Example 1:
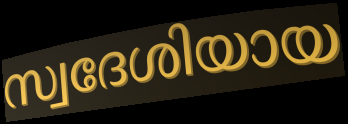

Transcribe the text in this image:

സ്വദേശിയായ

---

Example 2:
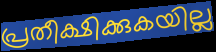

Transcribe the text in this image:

പ്രതീക്ഷിക്കുകയില്ല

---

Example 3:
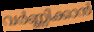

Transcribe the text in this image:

വർണ്ണിക്കാൻ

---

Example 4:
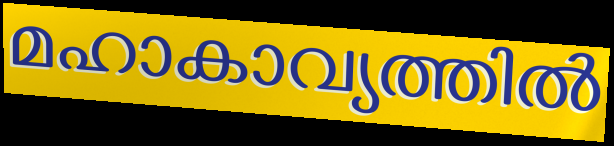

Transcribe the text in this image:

മഹാകാവ്യത്തിൽ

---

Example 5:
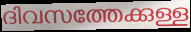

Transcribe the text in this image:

ദിവസത്തേക്കുള്ള